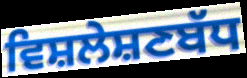
ਵਿਸ਼ਲੇਸ਼ਣਬੱਧ